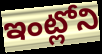
ఇంట్లోని